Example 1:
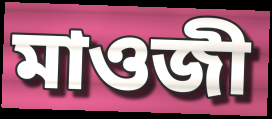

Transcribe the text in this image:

মাওজী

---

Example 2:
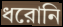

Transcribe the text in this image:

ধরোনি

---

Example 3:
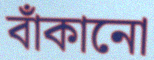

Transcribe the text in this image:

বাঁকানো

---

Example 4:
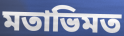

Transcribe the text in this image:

মতাভিমত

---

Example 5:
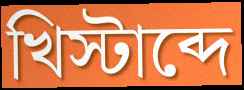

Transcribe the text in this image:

খিস্টাব্দে